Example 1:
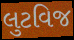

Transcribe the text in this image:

લુટવિજ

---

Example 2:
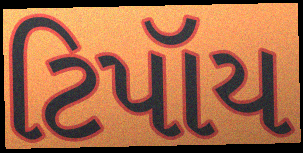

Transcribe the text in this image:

ટિપૉય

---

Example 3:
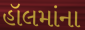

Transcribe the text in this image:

હૉલમાંના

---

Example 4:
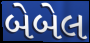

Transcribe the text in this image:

બેબેલ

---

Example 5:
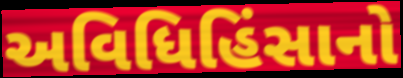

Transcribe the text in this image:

અવિધિહિંસાનો